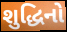
શુદ્ધિનો